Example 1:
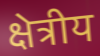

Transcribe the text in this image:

क्षेत्रीय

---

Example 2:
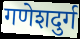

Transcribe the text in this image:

गणेशदुर्ग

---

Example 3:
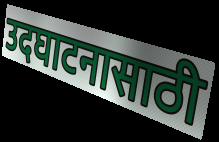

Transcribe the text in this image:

उदघाटनासाठी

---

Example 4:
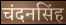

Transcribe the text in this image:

चंदनसिंह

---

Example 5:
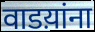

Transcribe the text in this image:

वाडय़ांना